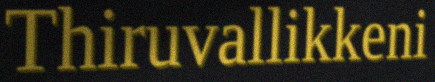
Thiruvallikkeni